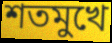
শতমুখে